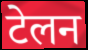
टेलन